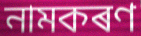
নামকৰণ